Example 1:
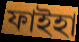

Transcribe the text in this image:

ফাইহা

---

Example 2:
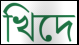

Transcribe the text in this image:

খিদে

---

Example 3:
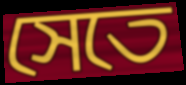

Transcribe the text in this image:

সেতে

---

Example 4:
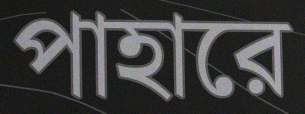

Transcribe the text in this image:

পাহারে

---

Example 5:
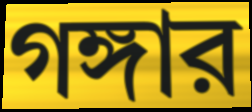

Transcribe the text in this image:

গঙ্গার